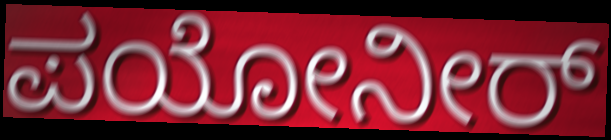
ಪಯೋನೀರ್